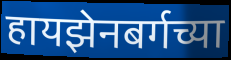
हायझेनबर्गच्या